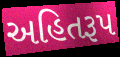
અહિતરૂપ